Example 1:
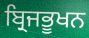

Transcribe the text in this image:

ਬ੍ਰਿਜਭੂਖਨ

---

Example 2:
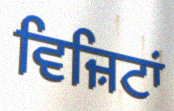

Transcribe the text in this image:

ਵਿਜ਼ਿਟਾਂ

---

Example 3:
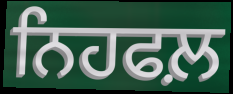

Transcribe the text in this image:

ਨਿਹਫਲ਼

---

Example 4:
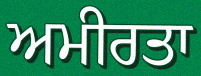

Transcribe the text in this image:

ਅਮੀਰਤਾ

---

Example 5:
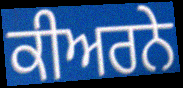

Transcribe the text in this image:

ਕੀਅਰਨੇ